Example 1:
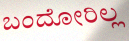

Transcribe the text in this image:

ಬಂದೋರಿಲ್ಲ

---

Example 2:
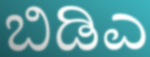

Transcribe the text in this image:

ಬಿಡಿಎ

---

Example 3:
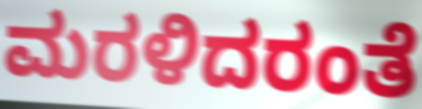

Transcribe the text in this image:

ಮರಳಿದರಂತೆ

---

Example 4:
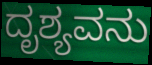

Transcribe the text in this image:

ದೃಶ್ಯವನು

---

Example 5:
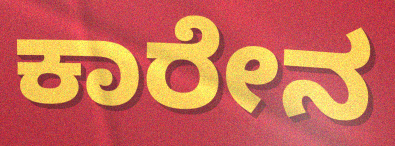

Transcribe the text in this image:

ಕಾರೇನ